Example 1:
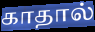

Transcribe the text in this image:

காதால்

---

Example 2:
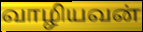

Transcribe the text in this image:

வாழியவன்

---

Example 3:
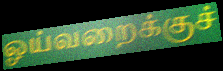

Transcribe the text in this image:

ஓய்வறைக்குச்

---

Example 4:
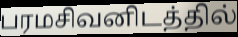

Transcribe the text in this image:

பரமசிவனிடத்தில்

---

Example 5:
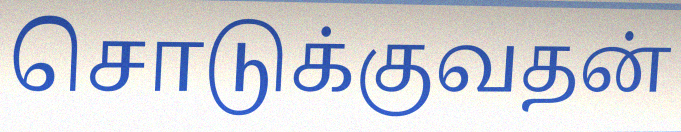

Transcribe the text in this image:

சொடுக்குவதன்